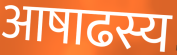
आषाढस्य